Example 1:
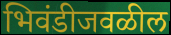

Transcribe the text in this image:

भिवंडीजवळील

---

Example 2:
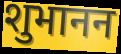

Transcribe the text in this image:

शुभानन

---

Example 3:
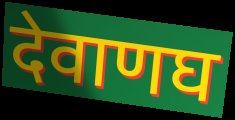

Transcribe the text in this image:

देवाणघ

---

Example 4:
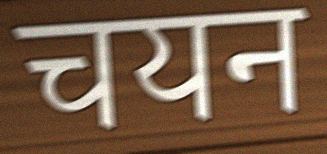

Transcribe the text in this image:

चयन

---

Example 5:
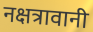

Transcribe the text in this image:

नक्षत्रावानी